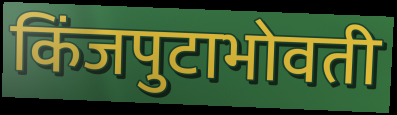
किंजपुटाभोवती